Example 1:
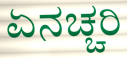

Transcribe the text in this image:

ಏನಚ್ಚರಿ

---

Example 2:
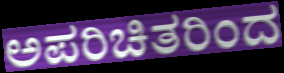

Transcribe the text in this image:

ಅಪರಿಚಿತರಿಂದ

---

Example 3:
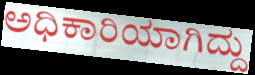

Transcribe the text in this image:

ಅಧಿಕಾರಿಯಾಗಿದ್ದು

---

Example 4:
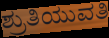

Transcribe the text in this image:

ಶ್ರುತಿಯುವತಿ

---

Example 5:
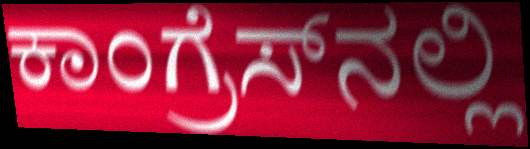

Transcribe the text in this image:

ಕಾಂಗ್ರೆಸ್‍ನಲ್ಲಿ